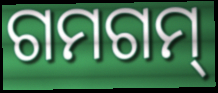
ଗମଗମ୍